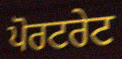
ਪੋਰਟਰੇਟ